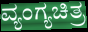
ವ್ಯಂಗ್ಯಚಿತ್ರ